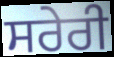
ਸਰੇਰੀ